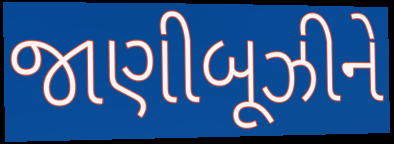
જાણીબૂઝીને